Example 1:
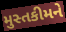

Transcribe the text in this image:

મુસ્તકીમને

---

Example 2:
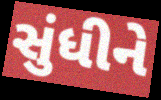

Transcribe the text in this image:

સુંધીને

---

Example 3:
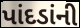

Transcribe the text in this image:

પાંદડાંની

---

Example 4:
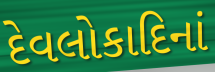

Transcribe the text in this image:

દેવલોકાદિનાં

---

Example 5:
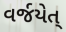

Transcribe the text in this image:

વર્જયેત્